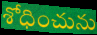
శోధించును